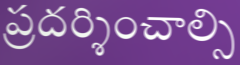
ప్రదర్శించాల్సి